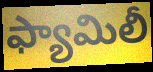
ఫ్యామిలీ